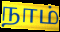
நாம்